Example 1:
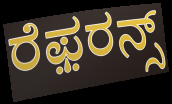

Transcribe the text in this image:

ರೆಫ಼ರನ್ಸ್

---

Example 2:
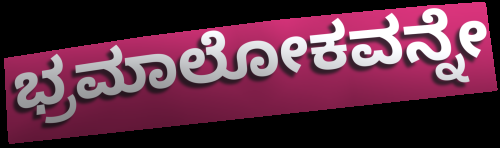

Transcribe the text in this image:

ಭ್ರಮಾಲೋಕವನ್ನೇ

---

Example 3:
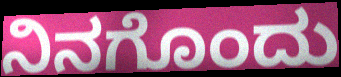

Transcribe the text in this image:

ನಿನಗೊಂದು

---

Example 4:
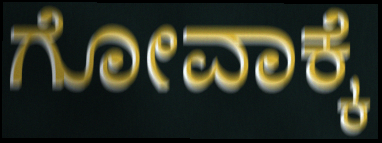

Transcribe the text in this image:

ಗೋವಾಕ್ಕೆ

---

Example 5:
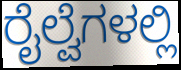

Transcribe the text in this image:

ರೈಲ್ವೆಗಳಲ್ಲಿ